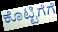
ಕೊಟ್ಟಿಗೆಗೆ